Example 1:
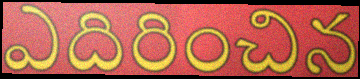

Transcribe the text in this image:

ఎదిరించిన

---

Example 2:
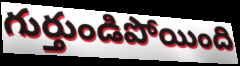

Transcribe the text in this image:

గుర్తుండిపోయింది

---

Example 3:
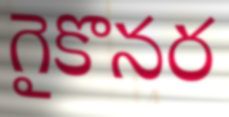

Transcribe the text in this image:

గైకొనర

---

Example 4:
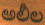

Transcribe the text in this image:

అలీల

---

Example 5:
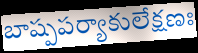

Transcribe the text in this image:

బాష్పపర్యాకులేక్షణః